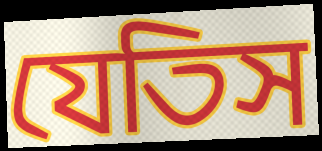
যেতিস